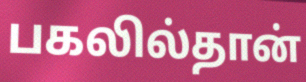
பகலில்தான்